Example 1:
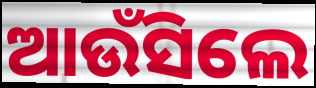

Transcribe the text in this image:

ଆଉଁସିଲେ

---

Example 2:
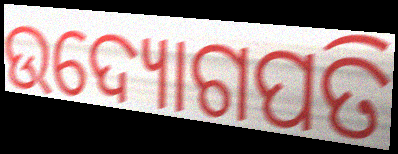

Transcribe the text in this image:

ଉଦ୍ୟୋଗପତି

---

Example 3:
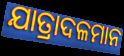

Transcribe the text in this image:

ଯାତ୍ରାଦଳମାନ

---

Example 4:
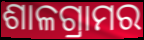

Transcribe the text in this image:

ଶାଳଗ୍ରାମର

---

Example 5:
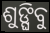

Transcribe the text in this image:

ଶୁଙ୍ଘିବୁ